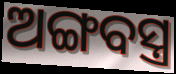
ଅଙ୍ଗବସ୍ତ୍ର